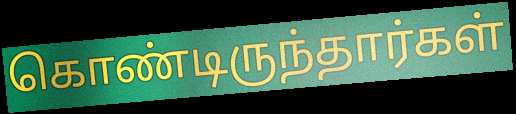
கொண்டிருந்தார்கள்